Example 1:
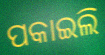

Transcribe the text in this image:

ପକାଇଲି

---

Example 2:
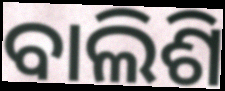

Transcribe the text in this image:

ବାଲିଶି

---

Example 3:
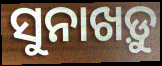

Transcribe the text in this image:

ସୁନାଖଡ଼ୁ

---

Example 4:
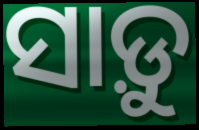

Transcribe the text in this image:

ସାଡ଼ୁ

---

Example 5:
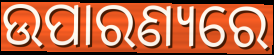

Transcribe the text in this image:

ଉପାରଣ୍ୟରେ